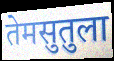
तेमसुतुला